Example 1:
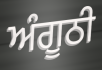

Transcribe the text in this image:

ਅੰਗੂਠੀ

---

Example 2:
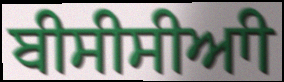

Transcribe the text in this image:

ਬੀਸੀਸੀਆੀ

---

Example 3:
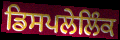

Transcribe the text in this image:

ਡਿਸਪਲੇਲਿੰਕ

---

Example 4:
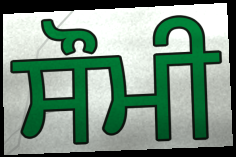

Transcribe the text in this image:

ਸੌਮੀ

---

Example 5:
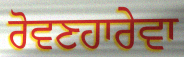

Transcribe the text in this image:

ਰੋਵਣਹਾਰੇਵਾ